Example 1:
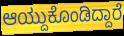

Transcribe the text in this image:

ಆಯ್ದುಕೊಂಡಿದ್ದಾರೆ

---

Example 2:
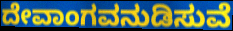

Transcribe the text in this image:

ದೇವಾಂಗವನುಡಿಸುವೆ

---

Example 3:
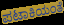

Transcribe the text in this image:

ಪಟಾಕಿಯಂತೆ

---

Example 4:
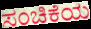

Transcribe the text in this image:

ಸಂಚಿಕೆಯ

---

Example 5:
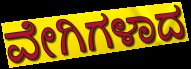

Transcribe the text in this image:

ವೇಗಿಗಳಾದ